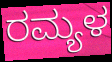
ರಮ್ಯಳ